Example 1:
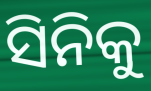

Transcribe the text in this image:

ସିନିକୁ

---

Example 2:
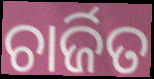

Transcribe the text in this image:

ଚାର୍ଜିତ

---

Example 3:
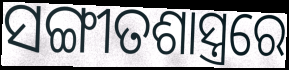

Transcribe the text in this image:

ସଙ୍ଗୀତଶାସ୍ତ୍ରରେ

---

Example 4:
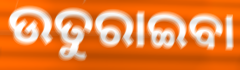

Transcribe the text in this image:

ଉତୁରାଇବା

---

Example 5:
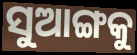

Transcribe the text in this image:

ସୁଆଙ୍ଗକୁ